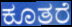
ಕೂತರೆ